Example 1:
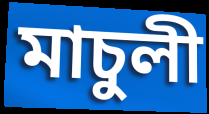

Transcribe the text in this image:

মাচুলী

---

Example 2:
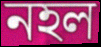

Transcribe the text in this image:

নহল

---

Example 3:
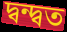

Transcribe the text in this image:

দ্বন্দ্বত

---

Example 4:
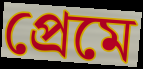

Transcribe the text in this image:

প্ৰেমে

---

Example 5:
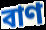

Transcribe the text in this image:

বাণ